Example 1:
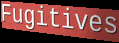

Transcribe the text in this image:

Fugitives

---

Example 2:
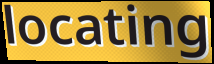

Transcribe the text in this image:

locating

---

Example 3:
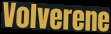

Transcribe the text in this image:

Volverene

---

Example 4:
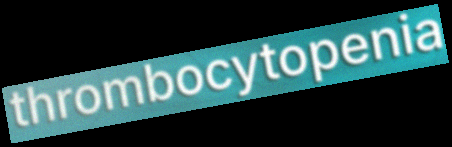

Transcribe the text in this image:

thrombocytopenia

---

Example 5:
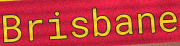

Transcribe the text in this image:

Brisbane